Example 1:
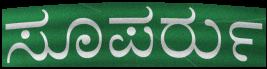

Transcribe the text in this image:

ಸೂಪರ್ರು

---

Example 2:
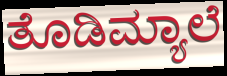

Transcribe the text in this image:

ತೊಡಿಮ್ಯಾಲೆ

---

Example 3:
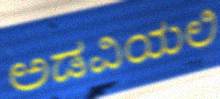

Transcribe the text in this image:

ಅಡವಿಯಲಿ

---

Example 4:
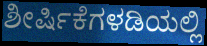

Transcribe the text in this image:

ಶೀರ್ಷಿಕೆಗಳಡಿಯಲ್ಲಿ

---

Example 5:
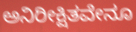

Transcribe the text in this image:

ಅನಿರೀಕ್ಷಿತವೇನೂ